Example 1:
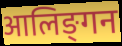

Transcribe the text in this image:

आलिङ्गन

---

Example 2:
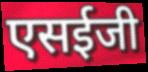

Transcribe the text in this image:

एसईजी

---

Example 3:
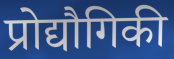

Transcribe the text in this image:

प्रोद्यौगिकी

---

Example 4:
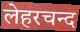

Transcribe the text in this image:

लेहरचन्द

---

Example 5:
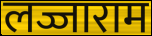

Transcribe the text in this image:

लज्जाराम